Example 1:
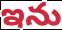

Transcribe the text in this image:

ఇను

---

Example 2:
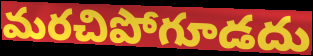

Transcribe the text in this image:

మరచిపోగూడదు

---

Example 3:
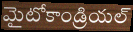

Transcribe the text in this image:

మైటోకాండ్రియల్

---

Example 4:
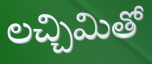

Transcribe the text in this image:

లచ్చిమితో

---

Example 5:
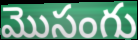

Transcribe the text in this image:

మొసంగు